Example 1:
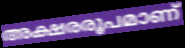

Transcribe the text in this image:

അക്ഷരരൂപമാണ്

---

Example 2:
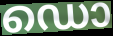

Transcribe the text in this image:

ഡൊ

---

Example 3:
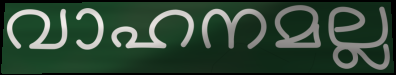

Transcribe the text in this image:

വാഹനമല്ല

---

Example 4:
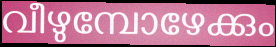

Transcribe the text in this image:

വീഴുമ്പോഴേക്കും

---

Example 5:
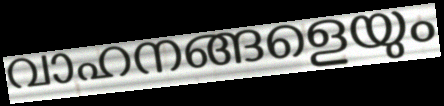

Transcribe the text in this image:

വാഹനങ്ങളെയും